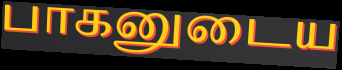
பாகனுடைய